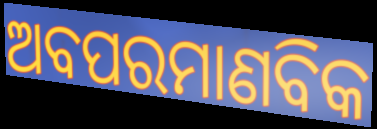
ଅବପରମାଣବିକ